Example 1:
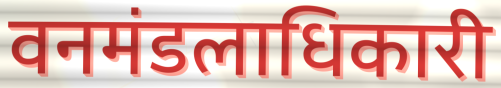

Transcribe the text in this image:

वनमंडलाधिकारी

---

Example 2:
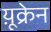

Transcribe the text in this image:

य़ूक्रेन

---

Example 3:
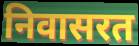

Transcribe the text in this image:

निवासरत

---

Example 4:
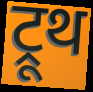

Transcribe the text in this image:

ट्रूथ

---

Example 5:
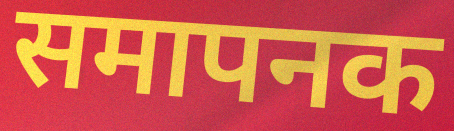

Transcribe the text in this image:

समापनक